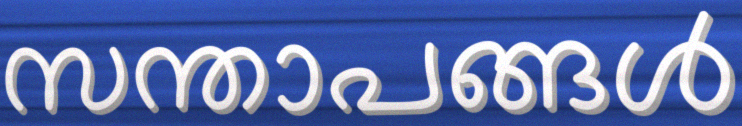
സന്താപങ്ങൾ